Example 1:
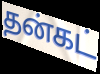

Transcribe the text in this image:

தன்கட்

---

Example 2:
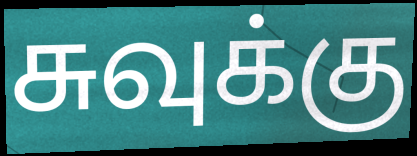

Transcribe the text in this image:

சுவுக்கு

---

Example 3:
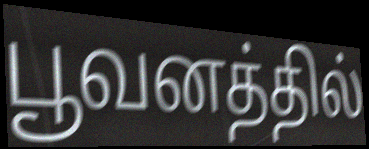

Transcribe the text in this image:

பூவனத்தில்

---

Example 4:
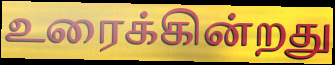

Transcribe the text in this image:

உரைக்கின்றது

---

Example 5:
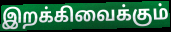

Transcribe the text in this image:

இறக்கிவைக்கும்